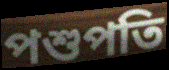
পশুপতি